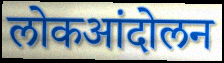
लोकआंदोलन